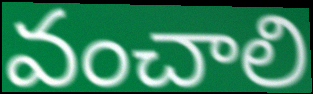
వంచాలి